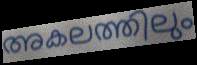
അകലത്തിലും